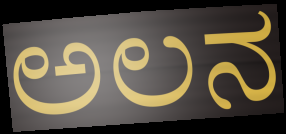
ಅಲನ